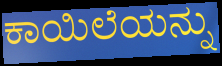
ಕಾಯಿಲೆಯನ್ನು